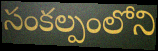
సంకల్పంలోని